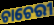
ଚାଚେରୀ